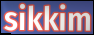
sikkim